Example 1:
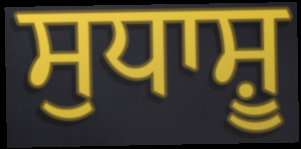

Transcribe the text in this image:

ਸੁਧਾਸ਼ੂ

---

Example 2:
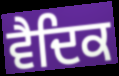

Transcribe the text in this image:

ਵੈਦਿਕ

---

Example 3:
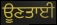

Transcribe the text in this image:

ਊਣਤਾਈ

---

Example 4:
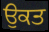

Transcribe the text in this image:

ਉਕਤ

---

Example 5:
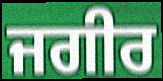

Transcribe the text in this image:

ਜਗੀਰ